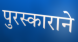
पुरस्काराने